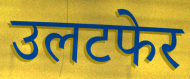
उलटफेर